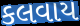
કલવાય